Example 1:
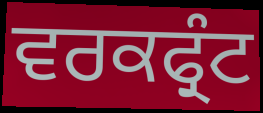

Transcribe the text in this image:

ਵਰਕਫ੍ਰੰਟ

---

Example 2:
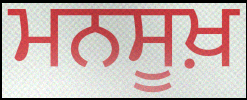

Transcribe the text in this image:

ਮਨਸੂਖ਼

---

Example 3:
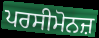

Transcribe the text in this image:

ਪਰਸੀਮੋਨਜ਼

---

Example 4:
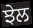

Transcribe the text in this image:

ਝੇਲ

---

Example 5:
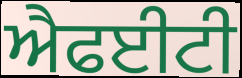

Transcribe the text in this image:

ਐਫਈਟੀ